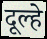
दूल्हे